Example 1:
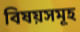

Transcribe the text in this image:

বিষয়সমূহ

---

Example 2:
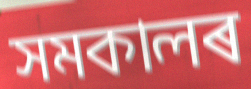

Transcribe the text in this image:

সমকালৰ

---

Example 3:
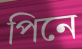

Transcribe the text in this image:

পিনে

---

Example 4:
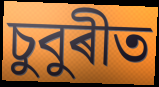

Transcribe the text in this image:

চুবুৰীত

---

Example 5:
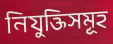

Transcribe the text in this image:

নিযুক্তিসমূহ